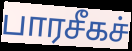
பாரசீகச்